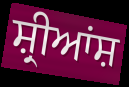
ਸ਼੍ਰੀਆਂਸ਼